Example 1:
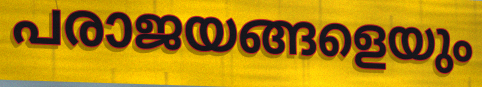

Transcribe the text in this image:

പരാജയങ്ങളെയും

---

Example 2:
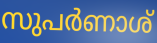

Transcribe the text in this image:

സുപർണാശ്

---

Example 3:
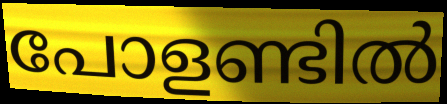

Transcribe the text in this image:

പോളണ്ടിൽ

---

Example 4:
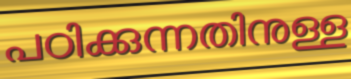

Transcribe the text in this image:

പഠിക്കുന്നതിനുള്ള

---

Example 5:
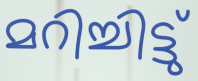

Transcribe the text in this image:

മറിച്ചിട്ടു്